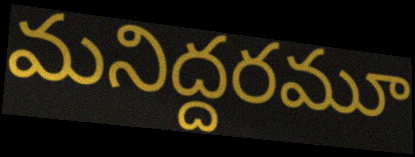
మనిద్దరమూ